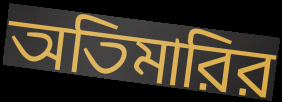
অতিমারির